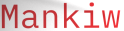
Mankiw